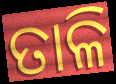
ତାଳି